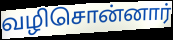
வழிசொன்னார்